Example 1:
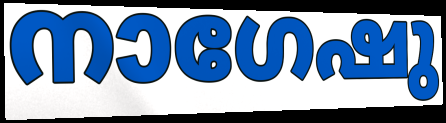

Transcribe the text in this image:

നാഗേഷു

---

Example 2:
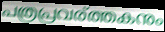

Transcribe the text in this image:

പത്രപ്രവര്ത്തകനും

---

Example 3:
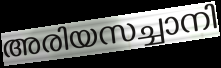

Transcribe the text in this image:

അരിയസച്ചാനി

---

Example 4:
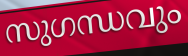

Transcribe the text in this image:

സുഗന്ധവും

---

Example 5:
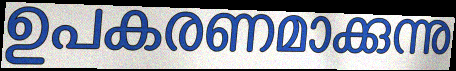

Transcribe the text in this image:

ഉപകരണമാക്കുന്നു